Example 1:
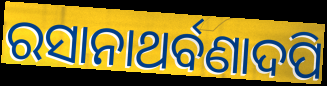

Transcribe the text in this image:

ରସାନାଥର୍ବଣାଦପି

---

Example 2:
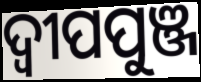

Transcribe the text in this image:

ଦ୍ଵୀପପୁଞ୍ଜ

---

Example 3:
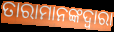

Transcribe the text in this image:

ତାରାମାନଙ୍କଦ୍ୱାରା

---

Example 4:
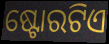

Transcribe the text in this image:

ଷ୍ଟୋରଟିଏ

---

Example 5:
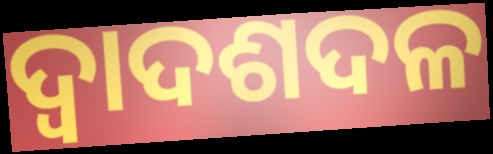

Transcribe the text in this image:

ଦ୍ୱାଦଶଦଳ